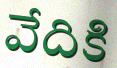
వేదికి